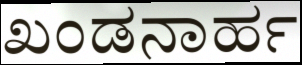
ಖಂಡನಾರ್ಹ